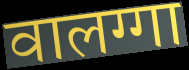
वालग्गा